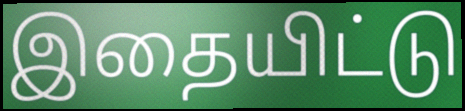
இதையிட்டு